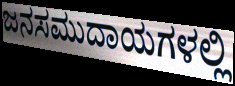
ಜನಸಮುದಾಯಗಳಲ್ಲಿ